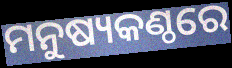
ମନୁଷ୍ୟକଣ୍ଠରେ